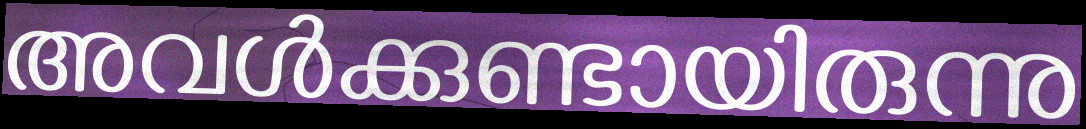
അവൾക്കുണ്ടായിരുന്നു